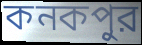
কনকপুর